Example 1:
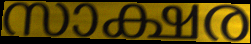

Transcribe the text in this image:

സാക്ഷര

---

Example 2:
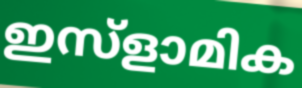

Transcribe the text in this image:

ഇസ്ളാമിക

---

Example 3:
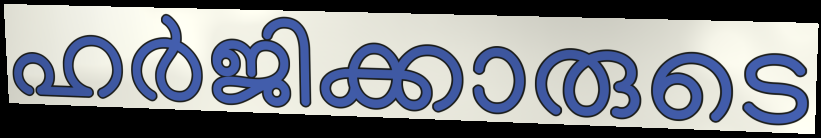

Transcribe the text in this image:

ഹർജിക്കാരുടെ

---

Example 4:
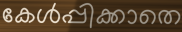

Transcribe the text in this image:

കേൾപ്പിക്കാതെ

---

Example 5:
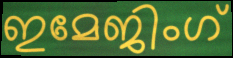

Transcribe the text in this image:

ഇമേജിംഗ്